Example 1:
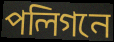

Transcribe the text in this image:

পলিগনে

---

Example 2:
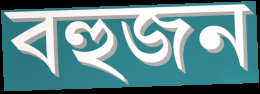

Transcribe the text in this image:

বহুজন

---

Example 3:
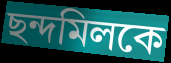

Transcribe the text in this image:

ছন্দমিলকে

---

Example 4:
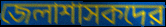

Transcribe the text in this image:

জেলাশাসকদের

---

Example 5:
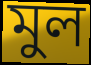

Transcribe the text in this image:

মুল